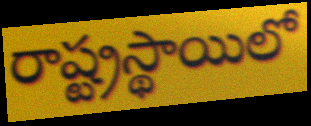
రాష్ట్రస్థాయిలో